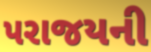
પરાજયની